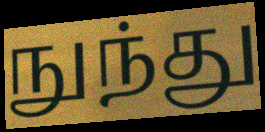
நுந்து